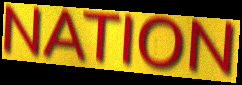
NATION